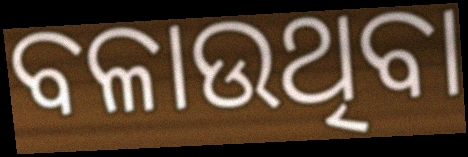
ବଳାଉଥିବା